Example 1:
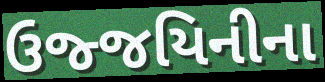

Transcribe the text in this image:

ઉજ્જયિનીના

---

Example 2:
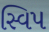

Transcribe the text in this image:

સ્વિપ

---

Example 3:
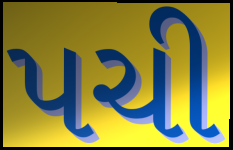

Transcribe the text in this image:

પચી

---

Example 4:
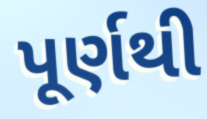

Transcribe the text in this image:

પૂર્ણથી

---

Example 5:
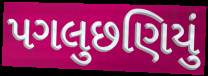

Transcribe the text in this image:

પગલુછણિયું